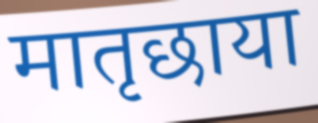
मातृछाया